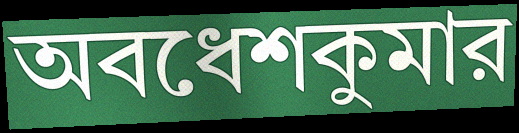
অবধেশকুমার